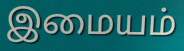
இமையம்